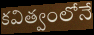
కవిత్వంలోనే